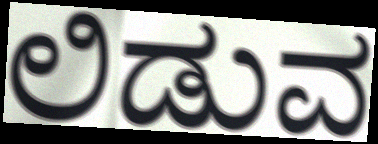
ಲಿಡುವ